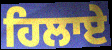
ਹਿਲਾਏ